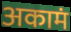
अकामं